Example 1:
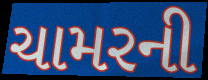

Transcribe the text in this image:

ચામરની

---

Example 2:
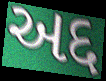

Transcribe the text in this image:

અદ્દ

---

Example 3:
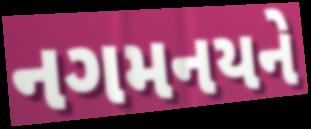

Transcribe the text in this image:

નગમનયને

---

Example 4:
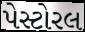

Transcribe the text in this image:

પેસ્ટોરલ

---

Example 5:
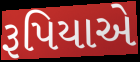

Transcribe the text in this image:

રૂપિયાએ